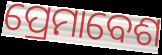
ପ୍ରେମାବେଶ